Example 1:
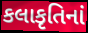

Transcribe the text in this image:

કલાકૃતિનાં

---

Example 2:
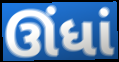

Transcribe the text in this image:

ઊંધાં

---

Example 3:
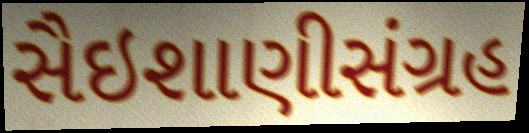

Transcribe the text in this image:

સૈઇશાણીસંગ્રહ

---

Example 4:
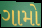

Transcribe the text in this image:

ગામો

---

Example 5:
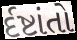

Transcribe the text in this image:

ર્દષ્ટાંતો